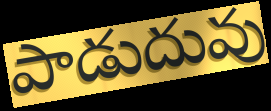
పాడుదువు